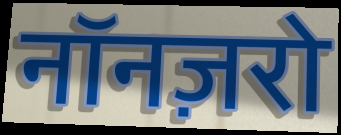
नॉनज़रो